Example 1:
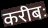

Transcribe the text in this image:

करीबः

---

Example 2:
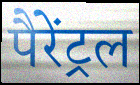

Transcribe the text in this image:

पैरेंट्रल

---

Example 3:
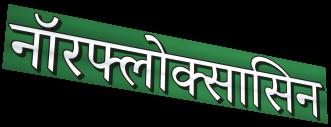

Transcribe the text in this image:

नॉरफ्लोक्सासिन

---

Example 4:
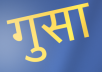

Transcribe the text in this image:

गुसा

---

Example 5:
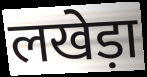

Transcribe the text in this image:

लखेड़ा